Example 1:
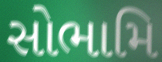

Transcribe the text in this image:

સોભામિ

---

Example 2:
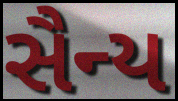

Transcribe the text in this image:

સૈન્ય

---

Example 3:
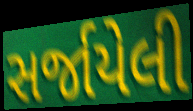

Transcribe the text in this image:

સર્જાયેલી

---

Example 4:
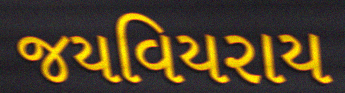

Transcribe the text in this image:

જયવિયરાય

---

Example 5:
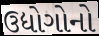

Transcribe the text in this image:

ઉદ્યોગોનો